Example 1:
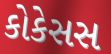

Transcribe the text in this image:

કોકેસસ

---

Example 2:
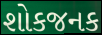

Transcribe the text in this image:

શોકજનક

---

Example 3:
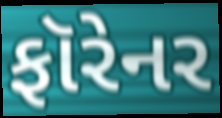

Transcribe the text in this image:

ફૉરેનર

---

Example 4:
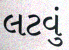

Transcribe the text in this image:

લટવું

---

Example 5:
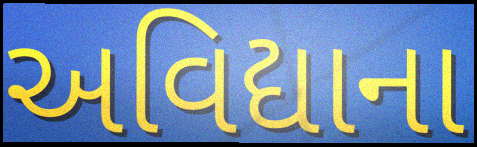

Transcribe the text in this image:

અવિદ્યાના